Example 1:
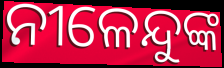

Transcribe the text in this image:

ନୀଳେନ୍ଦୁଙ୍କ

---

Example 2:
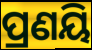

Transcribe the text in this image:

ପ୍ରଣୟି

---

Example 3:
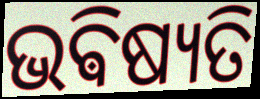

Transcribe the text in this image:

ଭଵିଷ୍ୟତି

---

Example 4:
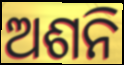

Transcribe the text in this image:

ଅଶନି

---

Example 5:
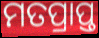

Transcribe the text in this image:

ମତପ୍ରାପ୍ତ